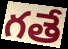
గతే